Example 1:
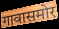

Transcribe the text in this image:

गावासमोर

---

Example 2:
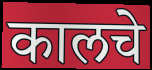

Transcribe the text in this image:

कालचे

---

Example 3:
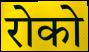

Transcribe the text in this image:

रोको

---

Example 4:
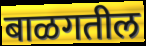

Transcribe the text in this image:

बाळगतील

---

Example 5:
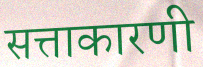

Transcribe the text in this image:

सत्ताकारणी